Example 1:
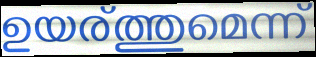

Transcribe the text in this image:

ഉയര്ത്തുമെന്ന്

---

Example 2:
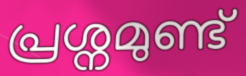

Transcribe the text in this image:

പ്രശ്നമുണ്ട്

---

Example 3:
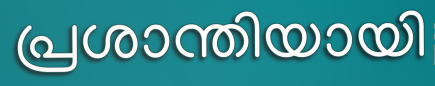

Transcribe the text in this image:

പ്രശാന്തിയായി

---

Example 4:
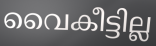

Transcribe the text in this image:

വൈകീട്ടില്ല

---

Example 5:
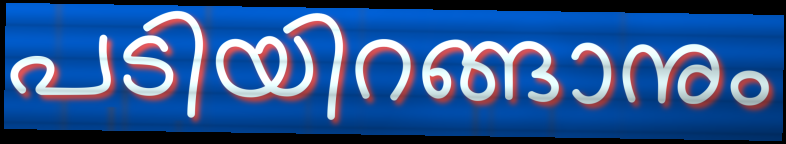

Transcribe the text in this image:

പടിയിറങ്ങാനും